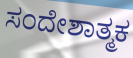
ಸಂದೇಶಾತ್ಮಕ